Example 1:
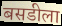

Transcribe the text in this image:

बसडीला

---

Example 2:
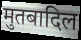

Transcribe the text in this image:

मुतबादिल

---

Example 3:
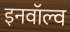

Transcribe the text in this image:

इनवॉल्व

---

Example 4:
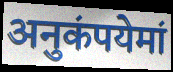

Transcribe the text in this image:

अनुकंपयेमां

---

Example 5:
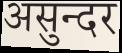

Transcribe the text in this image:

असुन्दर